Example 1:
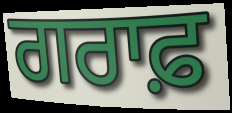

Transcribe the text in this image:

ਗਰਾਫ਼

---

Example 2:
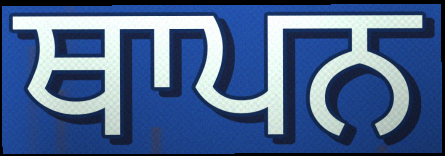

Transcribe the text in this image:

ਥਾਪਨ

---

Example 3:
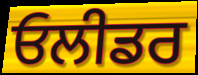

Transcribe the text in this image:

ਓਲੀਡਰ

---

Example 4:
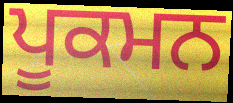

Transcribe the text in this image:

ਪੂਕਮਨ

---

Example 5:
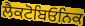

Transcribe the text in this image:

ਲੈਕਟੋਬਿਓਨਿਕ